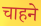
चाहने